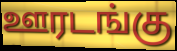
ஊரடங்கு